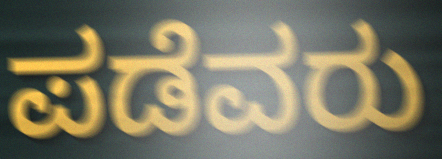
ಪಡೆವರು